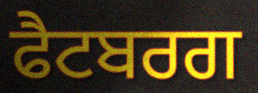
ਫੈਟਬਰਗ